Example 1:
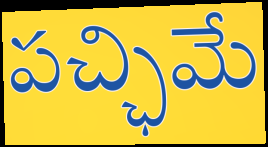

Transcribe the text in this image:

పచ్ఛిమే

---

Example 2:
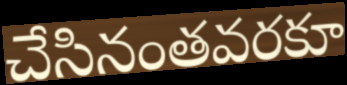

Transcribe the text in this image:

చేసినంతవరకూ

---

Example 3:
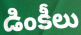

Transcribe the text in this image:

డింకీలు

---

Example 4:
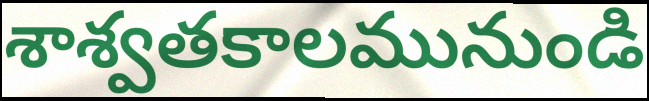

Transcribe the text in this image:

శాశ్వతకాలమునుండి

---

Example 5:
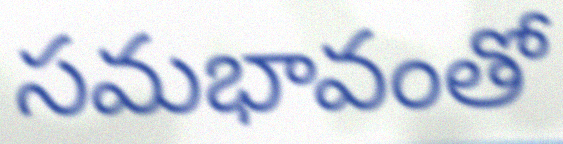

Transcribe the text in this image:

సమభావంతో